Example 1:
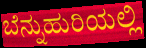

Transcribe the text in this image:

ಬೆನ್ನುಹುರಿಯಲ್ಲಿ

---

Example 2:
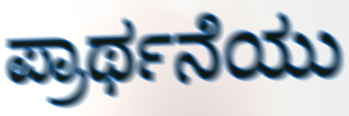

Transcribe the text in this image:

ಪ್ರಾರ್ಥನೆಯು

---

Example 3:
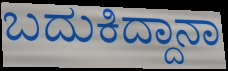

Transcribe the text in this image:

ಬದುಕಿದ್ದಾನಾ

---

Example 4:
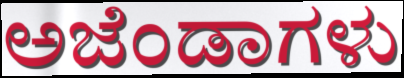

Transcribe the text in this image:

ಅಜೆಂಡಾಗಳು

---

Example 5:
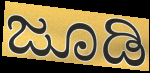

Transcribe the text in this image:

ಜೂಡಿ